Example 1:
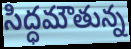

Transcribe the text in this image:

సిద్ధమౌతున్న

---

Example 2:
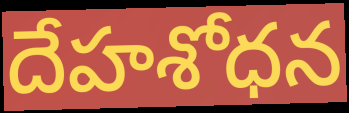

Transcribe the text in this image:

దేహశోధన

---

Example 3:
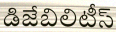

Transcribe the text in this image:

డిజేబిలిటీస్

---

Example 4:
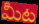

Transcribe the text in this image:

మీట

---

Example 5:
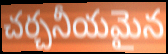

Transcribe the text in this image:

చర్చనీయమైన